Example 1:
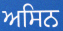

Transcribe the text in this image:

ਅਸਿਨ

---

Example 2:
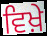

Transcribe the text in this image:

ਵਿਖ਼ੇ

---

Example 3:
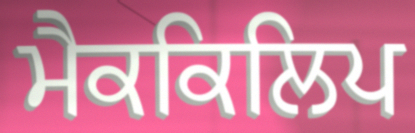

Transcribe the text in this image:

ਮੈਕਕਿਲਿਪ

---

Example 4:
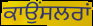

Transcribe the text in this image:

ਕਾਉਂਸਲਰਾਂ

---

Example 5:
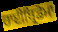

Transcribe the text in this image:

ਹਾਈਬ੍ਰਿਡੋਮਾ